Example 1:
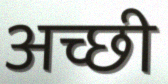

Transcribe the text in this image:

अच्‍छी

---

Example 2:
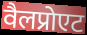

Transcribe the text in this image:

वैलप्रोएट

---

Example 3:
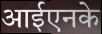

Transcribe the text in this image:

आईएनके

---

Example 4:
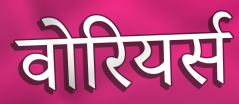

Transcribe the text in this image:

वोरियर्स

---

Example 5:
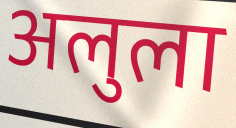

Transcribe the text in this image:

अलुला